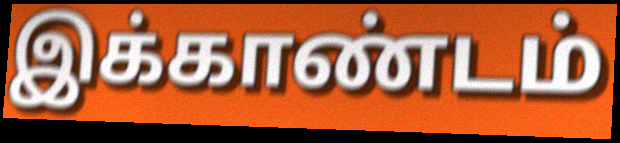
இக்காண்டம்